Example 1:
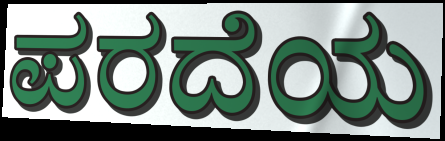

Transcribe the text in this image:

ಪರದೆಯ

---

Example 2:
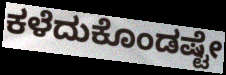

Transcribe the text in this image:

ಕಳೆದುಕೊಂಡಷ್ಟೇ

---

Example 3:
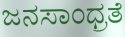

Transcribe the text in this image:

ಜನಸಾಂಧ್ರತೆ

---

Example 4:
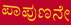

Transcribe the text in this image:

ಪಾಪುಣನೇ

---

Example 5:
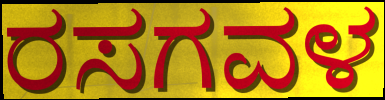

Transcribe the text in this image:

ರಸಗವಳ